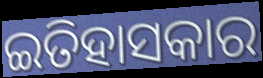
ଇତିହାସକାର